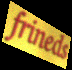
frineds